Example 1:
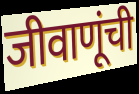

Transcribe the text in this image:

जीवाणूंची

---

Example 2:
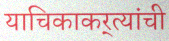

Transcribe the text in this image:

याचिकाकर्त्यांची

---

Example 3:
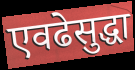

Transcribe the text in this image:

एवढेसुद्धा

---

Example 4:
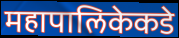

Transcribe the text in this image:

महापालिकेकडे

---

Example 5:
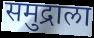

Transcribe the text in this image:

समुद्राला